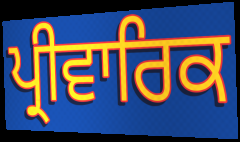
ਪ੍ਰੀਵਾਰਿਕ